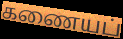
கணையப்